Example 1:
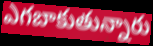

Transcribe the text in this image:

ఎగబాకుతున్నారు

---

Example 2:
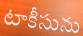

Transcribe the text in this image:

టాకీసును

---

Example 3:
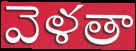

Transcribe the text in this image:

వెళతా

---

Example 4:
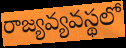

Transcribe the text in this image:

రాజ్యవ్యవస్థలో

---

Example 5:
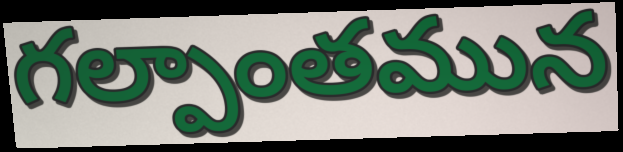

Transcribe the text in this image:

గల్పాంతమున